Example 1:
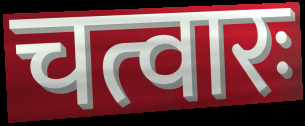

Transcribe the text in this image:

चत्वारः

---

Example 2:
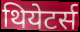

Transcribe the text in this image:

थियेटर्स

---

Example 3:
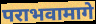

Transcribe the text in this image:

पराभवामागे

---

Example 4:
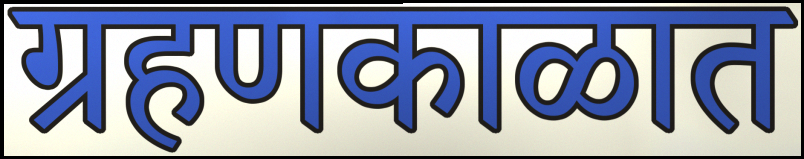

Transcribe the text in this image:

ग्रहणकाळात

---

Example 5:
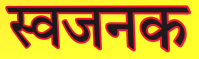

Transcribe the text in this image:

स्वजनक